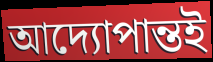
আদ্যোপান্তই